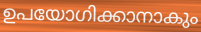
ഉപയോഗിക്കാനാകും